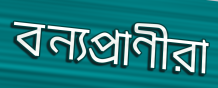
বন্যপ্রাণীরা